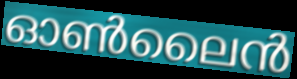
ഓൺലൈൻ